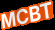
MCBT